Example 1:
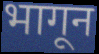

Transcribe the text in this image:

भागून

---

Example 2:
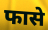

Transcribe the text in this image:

फासे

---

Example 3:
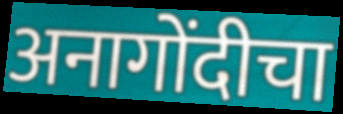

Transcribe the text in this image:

अनागोंदीचा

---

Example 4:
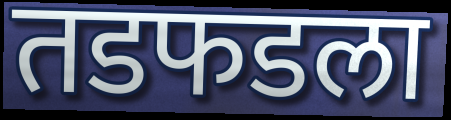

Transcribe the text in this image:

तडफडला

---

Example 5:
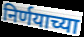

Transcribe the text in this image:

निर्णयाच्या